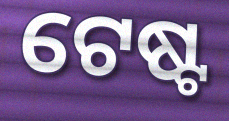
ଟେଷ୍ଟ